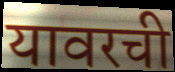
यावरची